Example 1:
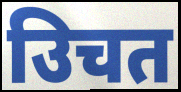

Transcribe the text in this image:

उिचत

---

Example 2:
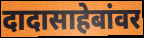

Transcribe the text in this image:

दादासाहेबांवर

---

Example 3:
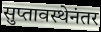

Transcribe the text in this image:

सुप्तावस्थेनंतर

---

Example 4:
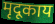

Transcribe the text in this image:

मृदूकाय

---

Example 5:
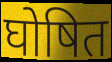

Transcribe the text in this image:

घोषित